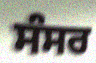
ਸੰਸਰ